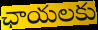
ఛాయలకు